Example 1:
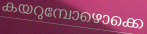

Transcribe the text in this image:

കയറുമ്പോഴൊക്കെ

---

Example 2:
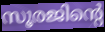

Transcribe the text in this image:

സൂരജിന്റെ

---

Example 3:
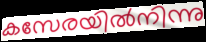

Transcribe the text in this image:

കസേരയിൽനിന്നു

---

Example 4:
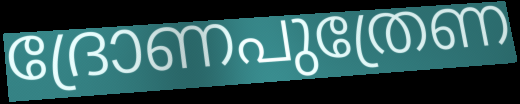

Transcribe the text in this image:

ദ്രോണപുത്രേണ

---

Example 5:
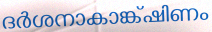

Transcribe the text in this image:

ദർശനാകാങ്ക്ഷിണം